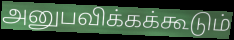
அனுபவிக்கக்கூடும்